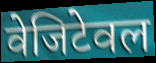
वेजिटेवल